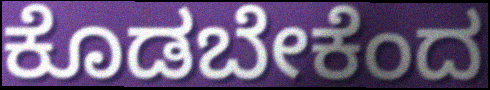
ಕೊಡಬೇಕೆಂದ